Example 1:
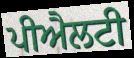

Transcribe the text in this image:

ਪੀਐਲਟੀ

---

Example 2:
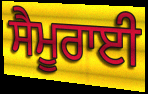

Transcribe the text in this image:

ਸੈਮੂਰਾਈ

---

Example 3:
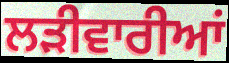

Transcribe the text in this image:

ਲੜੀਵਾਰੀਆਂ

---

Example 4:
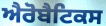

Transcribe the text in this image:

ਐਰੋਬੈਟਿਕਸ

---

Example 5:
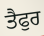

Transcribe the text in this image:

ਤੈਫੁਰ